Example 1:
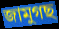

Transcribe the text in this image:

জামুগছ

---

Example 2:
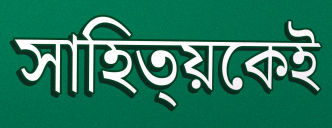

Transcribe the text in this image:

সাহিত্য়কেই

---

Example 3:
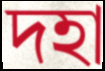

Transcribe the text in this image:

দহা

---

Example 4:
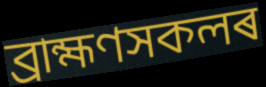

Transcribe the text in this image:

ব্ৰাহ্মণসকলৰ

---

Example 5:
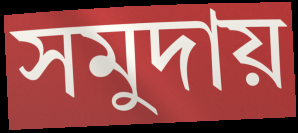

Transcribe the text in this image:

সমুদায়